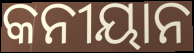
କନୀୟାନ